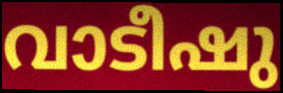
വാടീഷു